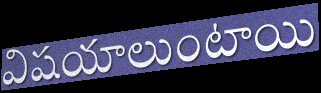
విషయాలుంటాయి